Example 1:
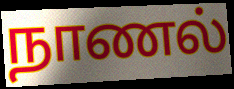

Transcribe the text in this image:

நாணல்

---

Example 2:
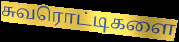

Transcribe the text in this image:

சுவரொட்டிகளை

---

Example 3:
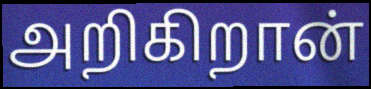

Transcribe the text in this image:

அறிகிறான்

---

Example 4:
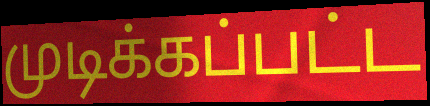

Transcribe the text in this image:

முடிக்கப்பட்ட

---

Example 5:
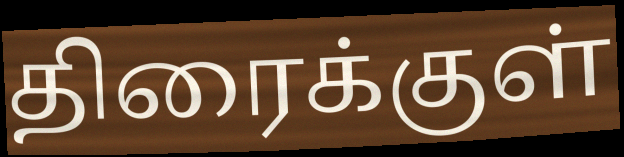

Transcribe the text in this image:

திரைக்குள்